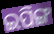
ଇପିଙ୍ଗ